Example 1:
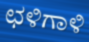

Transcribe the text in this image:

ಛಳಿಗಾಳಿ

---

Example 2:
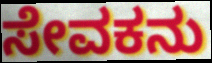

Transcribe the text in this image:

ಸೇವಕನು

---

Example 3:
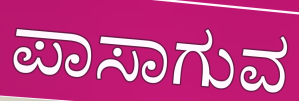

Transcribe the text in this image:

ಪಾಸಾಗುವ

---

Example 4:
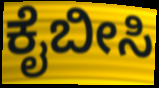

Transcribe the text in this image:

ಕೈಬೀಸಿ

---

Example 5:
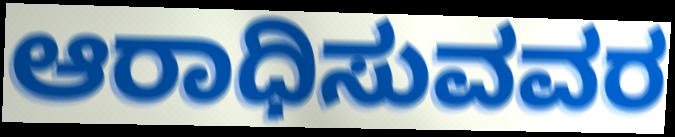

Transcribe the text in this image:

ಆರಾಧಿಸುವವರ